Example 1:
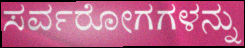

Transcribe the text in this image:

ಸರ್ವರೋಗಗಳನ್ನು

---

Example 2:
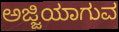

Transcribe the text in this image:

ಅಜ್ಜಿಯಾಗುವ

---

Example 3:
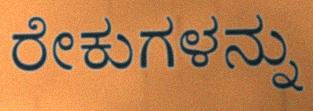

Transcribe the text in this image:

ರೇಕುಗಳನ್ನು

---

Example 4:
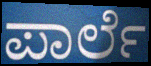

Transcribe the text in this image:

ಪಾರ್ಲೆ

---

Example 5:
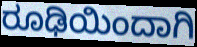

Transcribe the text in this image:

ರೂಢಿಯಿಂದಾಗಿ